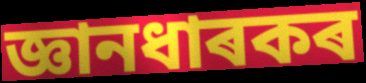
জ্ঞানধাৰকৰ